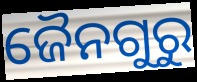
ଜୈନଗୁରୁ